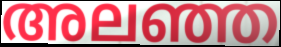
അലഞ്ഞ